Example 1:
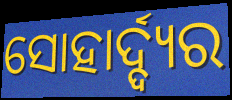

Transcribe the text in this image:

ସୋହାର୍ଦ୍ଦ୍ୟର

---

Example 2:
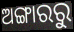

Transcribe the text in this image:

ଅଙ୍ଗାରରୁ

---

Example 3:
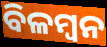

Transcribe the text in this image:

ବିଳମ୍ବନ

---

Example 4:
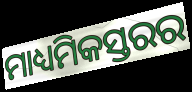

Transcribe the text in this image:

ମାଧ୍ୟମିକସ୍ତରର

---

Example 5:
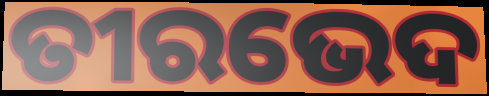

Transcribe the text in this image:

ତୀରଭେଦ